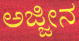
ಅಜ್ಜೀನ